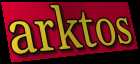
arktos